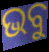
ଭବୁ